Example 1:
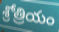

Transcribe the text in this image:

శ్రోత్రియం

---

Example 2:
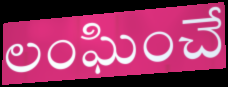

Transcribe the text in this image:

లంఘించే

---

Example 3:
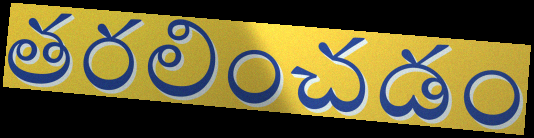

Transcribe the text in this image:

తరలించడం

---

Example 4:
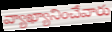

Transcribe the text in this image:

వ్యాఖ్యానించేవారు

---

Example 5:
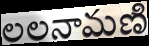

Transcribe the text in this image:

లలనామణి